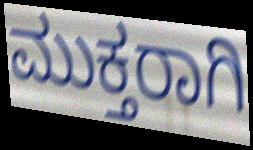
ಮುಕ್ತರಾಗಿ